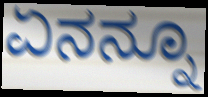
ಏನನ್ನೂ